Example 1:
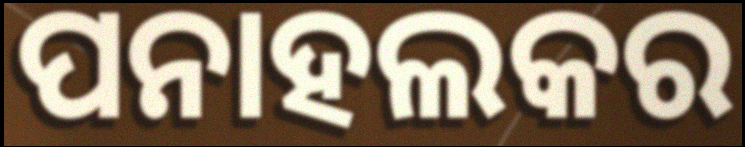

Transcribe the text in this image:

ପନାହଲକର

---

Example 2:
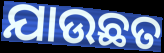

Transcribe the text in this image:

ଯାଉଛତ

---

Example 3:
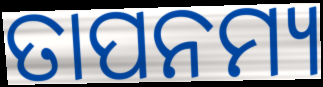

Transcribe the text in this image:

ତାପନମ୍ୟ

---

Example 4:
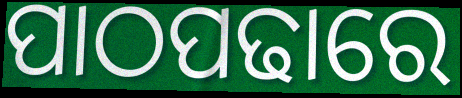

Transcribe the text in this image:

ପାଠପଢାରେ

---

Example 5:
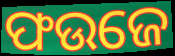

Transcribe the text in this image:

ଫଉଜେ